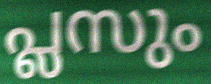
പ്ലസും